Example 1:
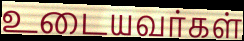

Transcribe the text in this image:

உடையவர்கள்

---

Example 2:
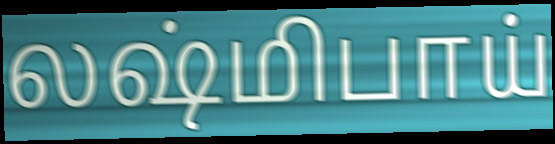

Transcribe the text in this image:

லஷ்மிபாய்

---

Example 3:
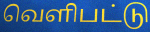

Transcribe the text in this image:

வெளிபட்டு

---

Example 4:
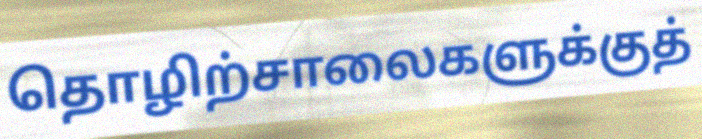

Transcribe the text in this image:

தொழிற்சாலைகளுக்குத்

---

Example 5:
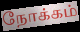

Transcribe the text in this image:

நோக்கம்